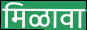
मिळावा